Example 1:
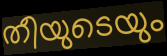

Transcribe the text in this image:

തീയുടെയും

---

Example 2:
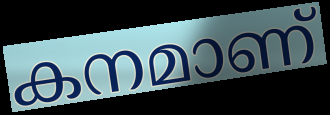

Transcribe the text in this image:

കനമാണ്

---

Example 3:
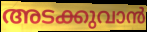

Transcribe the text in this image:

അടക്കുവാൻ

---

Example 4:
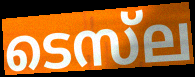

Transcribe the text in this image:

ടെസ്‌ല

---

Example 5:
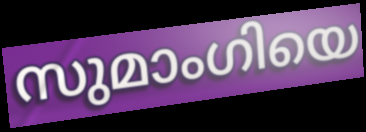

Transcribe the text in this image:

സുമാംഗിയെ